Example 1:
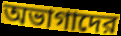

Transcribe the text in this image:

অভাগাদের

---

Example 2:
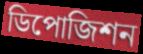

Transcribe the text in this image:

ডিপোজিশন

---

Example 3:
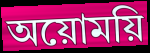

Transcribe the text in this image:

অয়োময়ি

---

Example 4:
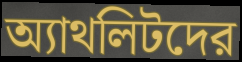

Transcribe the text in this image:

অ্যাথলিটদের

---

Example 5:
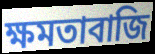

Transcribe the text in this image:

ক্ষমতাবাজি